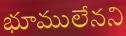
భూములేనని